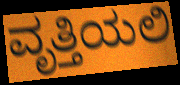
ವೃತ್ತಿಯಲಿ